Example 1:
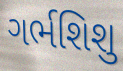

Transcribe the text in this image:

ગર્ભશિશુ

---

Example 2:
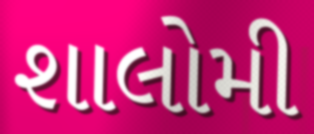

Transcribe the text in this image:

શાલોમી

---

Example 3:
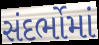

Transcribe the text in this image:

સંદર્ભોમાં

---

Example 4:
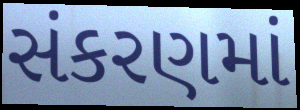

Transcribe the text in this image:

સંકરણમાં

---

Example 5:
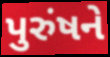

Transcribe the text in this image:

પુરુંષને